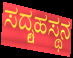
ಸದ್ಗೃಹಸ್ಥನ